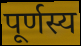
पूर्णस्य